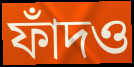
ফাঁদও